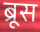
ब्रूस